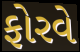
ફોરવે